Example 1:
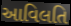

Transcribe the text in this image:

આવિલતિ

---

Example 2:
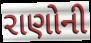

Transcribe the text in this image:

રાણોની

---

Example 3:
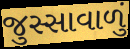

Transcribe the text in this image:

જુસ્સાવાળું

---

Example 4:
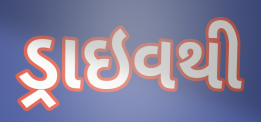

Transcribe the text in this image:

ડ્રાઇવથી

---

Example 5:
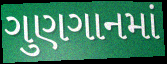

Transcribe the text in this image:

ગુણગાનમાં